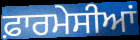
ਫ਼ਾਰਮੇਸੀਆਂ